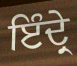
ਇੰਦ੍ਰੇ